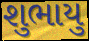
શુભાયુ